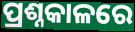
ପ୍ରଶ୍ନକାଳରେ